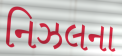
નિઝલના